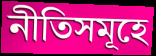
নীতিসমূহে